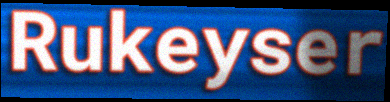
Rukeyser